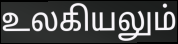
உலகியலும்